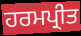
ਹਰਮਪ੍ਰੀਤ